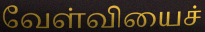
வேள்வியைச்